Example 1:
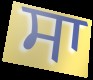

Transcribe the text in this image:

ਸਾ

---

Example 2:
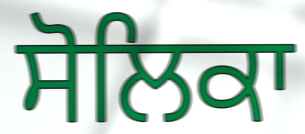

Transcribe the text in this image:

ਸੋਲਿਕਾ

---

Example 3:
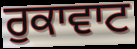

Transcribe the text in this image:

ਰੁਕਾਵਾਟ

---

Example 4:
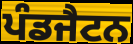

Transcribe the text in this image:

ਪੰਡਜੈਟਨ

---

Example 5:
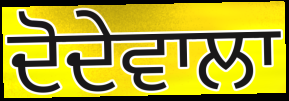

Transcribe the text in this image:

ਦੋਦੇਵਾਲਾ